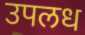
उपलध